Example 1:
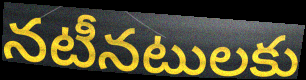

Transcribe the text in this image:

నటీనటులకు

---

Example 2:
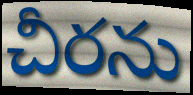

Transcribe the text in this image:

చీరను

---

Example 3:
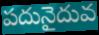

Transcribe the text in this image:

పదునైదువ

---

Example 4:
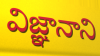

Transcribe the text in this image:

విజ్ఞానాని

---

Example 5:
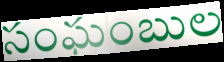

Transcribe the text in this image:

సంఘంబుల